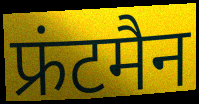
फ्रंटमैन